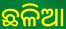
ଛଳିଆ